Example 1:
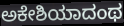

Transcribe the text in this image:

ಅಕೇಶಿಯಾದಂಥ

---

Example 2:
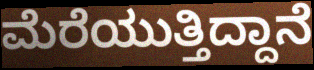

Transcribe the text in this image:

ಮೆರೆಯುತ್ತಿದ್ದಾನೆ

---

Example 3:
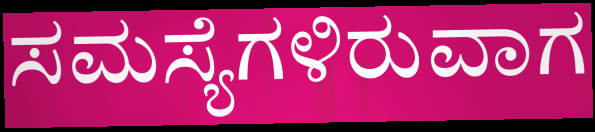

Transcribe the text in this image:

ಸಮಸ್ಯೆಗಳಿರುವಾಗ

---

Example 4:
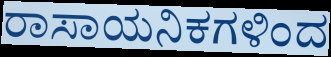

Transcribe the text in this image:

ರಾಸಾಯನಿಕಗಳಿಂದ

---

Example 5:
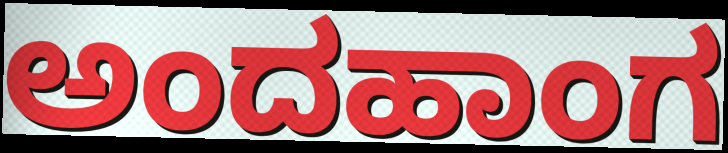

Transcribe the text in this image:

ಅಂದಹಾಂಗ